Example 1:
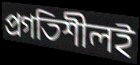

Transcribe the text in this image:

প্রগতিশীলই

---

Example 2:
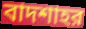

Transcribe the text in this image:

বাদশাহর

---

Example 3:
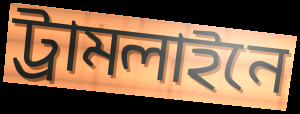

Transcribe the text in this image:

ট্রামলাইনে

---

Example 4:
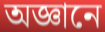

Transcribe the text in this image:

অজ্ঞানে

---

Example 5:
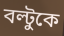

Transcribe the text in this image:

বল্টুকে